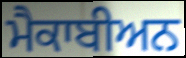
ਮੈਕਾਬੀਅਨ